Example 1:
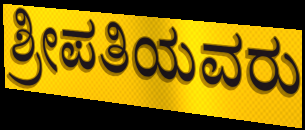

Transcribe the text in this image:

ಶ್ರೀಪತಿಯವರು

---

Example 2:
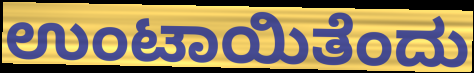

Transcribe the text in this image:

ಉಂಟಾಯಿತೆಂದು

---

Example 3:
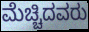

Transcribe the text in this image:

ಮೆಚ್ಚಿದವರು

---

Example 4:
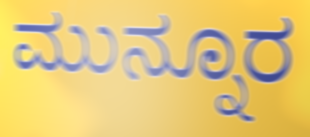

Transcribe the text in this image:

ಮುನ್ನೂರ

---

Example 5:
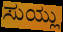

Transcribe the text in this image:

ಸುಯ್ಲು